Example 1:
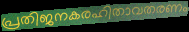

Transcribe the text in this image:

പ്രതിജനകരഹിതാവതരണം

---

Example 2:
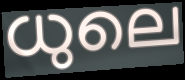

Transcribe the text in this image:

ധുലെ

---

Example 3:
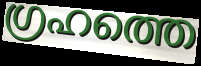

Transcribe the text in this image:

ഗ്രഹത്തെ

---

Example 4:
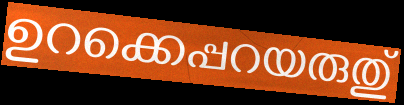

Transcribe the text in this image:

ഉറക്കെപ്പറയരുതു്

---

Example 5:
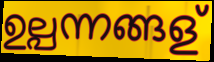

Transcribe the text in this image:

ഉല്പന്നങ്ങള്